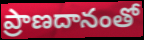
ప్రాణదానంతో